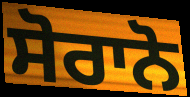
ਸੋਰਾਨੋ